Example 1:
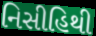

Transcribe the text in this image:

નિસીહિથી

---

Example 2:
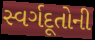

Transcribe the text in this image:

સ્વર્ગદૂતોની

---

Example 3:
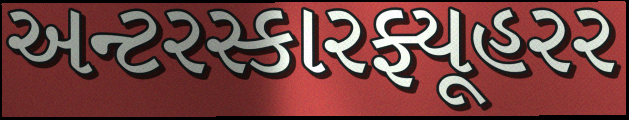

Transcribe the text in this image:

અન્ટરસ્કારફ્યૂહરર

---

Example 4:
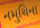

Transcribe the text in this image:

નમુચિના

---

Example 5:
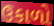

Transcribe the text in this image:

ઉકાળો